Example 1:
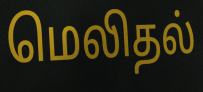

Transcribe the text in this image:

மெலிதல்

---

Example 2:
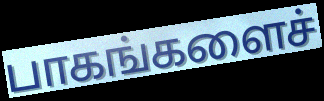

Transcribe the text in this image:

பாகங்களைச்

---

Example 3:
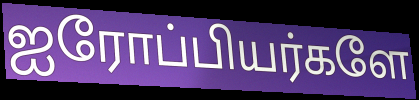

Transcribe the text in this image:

ஐரோப்பியர்களே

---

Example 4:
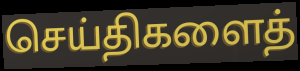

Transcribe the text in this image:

செய்திகளைத்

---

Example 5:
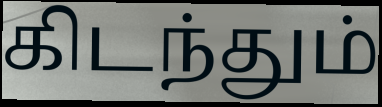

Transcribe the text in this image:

கிடந்தும்